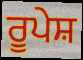
ਰੂਪੇਸ਼